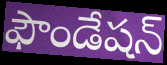
ఫౌండేషన్